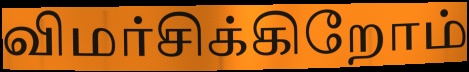
விமர்சிக்கிறோம்